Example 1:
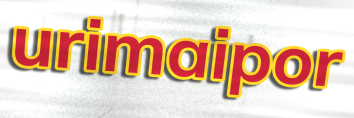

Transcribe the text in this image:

urimaipor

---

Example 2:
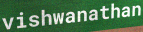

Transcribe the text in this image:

vishwanathan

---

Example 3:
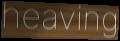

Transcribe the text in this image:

heaving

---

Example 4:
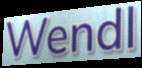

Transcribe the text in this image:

Wendl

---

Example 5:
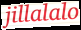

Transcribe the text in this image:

jillalalo